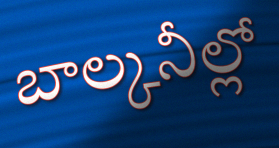
బాల్కనీల్లో